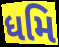
ધમિ